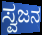
ಸ್ವಜನ